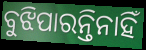
ବୁଝିପାରନ୍ତିନାହିଁ